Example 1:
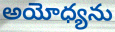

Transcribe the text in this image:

అయోధ్యను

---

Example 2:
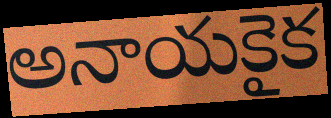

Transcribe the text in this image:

అనాయకైక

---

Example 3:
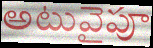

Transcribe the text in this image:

అటువైపూ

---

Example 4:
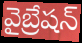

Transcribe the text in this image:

వైబ్రేషన్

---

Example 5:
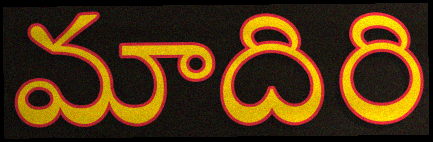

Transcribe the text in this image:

మాదిరి